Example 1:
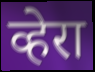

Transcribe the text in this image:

व्हेरा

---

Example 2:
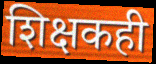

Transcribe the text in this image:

शिक्षकही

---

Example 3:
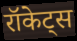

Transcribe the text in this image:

रॉकेट्स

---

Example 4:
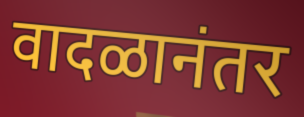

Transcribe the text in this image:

वादळानंतर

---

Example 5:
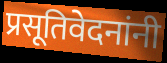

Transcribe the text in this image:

प्रसूतिवेदनांनी